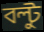
বল্টু